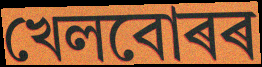
খেলবোৰৰ